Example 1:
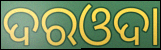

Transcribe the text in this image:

ଦରଓଦା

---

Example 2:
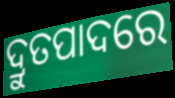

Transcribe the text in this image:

ଦ୍ରୁତପାଦରେ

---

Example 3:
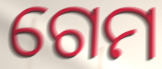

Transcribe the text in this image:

ଗେମ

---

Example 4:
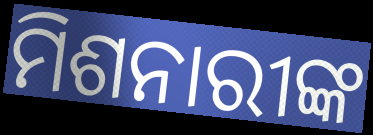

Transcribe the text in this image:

ମିଶନାରୀଙ୍କ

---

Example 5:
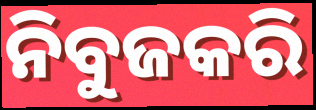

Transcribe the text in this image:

ନିବୁଜକରି